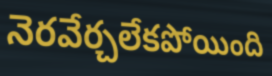
నెరవేర్చలేకపోయింది